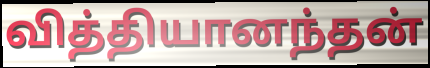
வித்தியானந்தன்